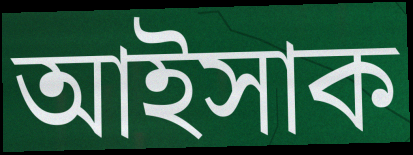
আইসাক